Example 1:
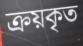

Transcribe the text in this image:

ক্রয়কৃত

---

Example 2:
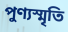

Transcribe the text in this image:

পুণ্যস্মৃতি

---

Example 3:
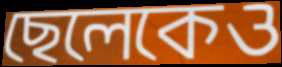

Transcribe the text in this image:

ছেলেকেও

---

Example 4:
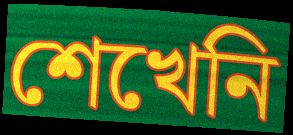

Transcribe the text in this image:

শেখেনি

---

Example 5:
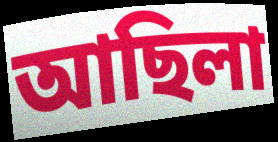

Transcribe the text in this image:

আছিলা